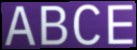
ABCE